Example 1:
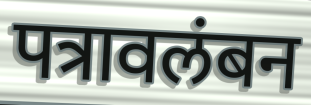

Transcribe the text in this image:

पत्रावलंबन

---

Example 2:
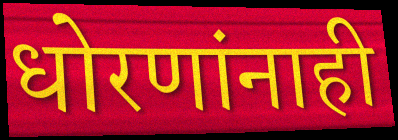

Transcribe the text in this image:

धोरणांनाही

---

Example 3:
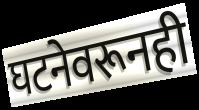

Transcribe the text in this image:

घटनेवरूनही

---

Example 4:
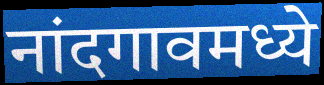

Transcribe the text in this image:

नांदगावमध्ये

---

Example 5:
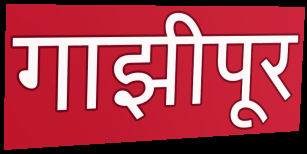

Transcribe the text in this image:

गाझीपूर